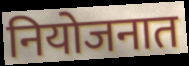
नियोजनात